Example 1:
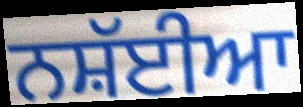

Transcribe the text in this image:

ਨਸ਼ੱਈਆ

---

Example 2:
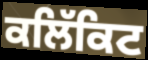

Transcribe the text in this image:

ਕਲਿੱਕਿਟ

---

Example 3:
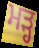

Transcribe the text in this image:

ਮੜ੍ਹ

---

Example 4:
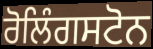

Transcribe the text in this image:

ਰੋਲਿੰਗਸਟੋਨ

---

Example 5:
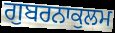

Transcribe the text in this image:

ਗੁਬਰਨਾਕੁਲਮ